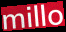
millo